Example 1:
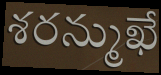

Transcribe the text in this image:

శరన్ముఖే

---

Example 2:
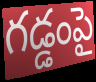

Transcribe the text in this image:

గడ్డంపై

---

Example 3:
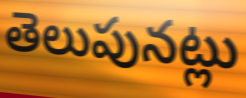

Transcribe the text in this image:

తెలుపునట్లు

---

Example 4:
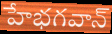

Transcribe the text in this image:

హేభగవాన్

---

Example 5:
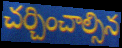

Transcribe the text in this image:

చర్చించాల్సిన